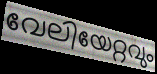
വേലിയേറ്റവും